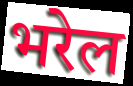
भरेल